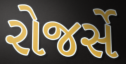
રોજર્સે